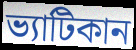
ভ্যাটিকান